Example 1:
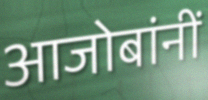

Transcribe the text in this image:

आजोबांनीं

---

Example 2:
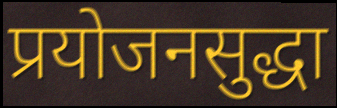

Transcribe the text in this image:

प्रयोजनसुद्धा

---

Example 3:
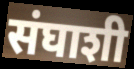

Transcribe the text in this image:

संघाशी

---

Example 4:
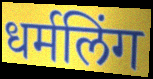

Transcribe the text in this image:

धर्मलिंग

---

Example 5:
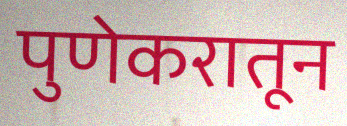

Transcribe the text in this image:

पुणेकरातून